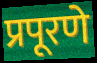
प्रपूरणे